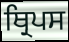
ਥ੍ਰਿਪਸ